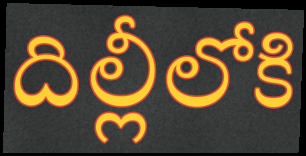
దిల్లీలోకి